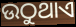
ଉଠୁଥାଏ